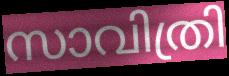
സാവിത്രി